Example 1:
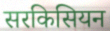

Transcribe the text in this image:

सरकिसियन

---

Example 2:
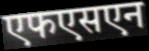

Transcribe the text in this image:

एफएसएन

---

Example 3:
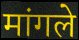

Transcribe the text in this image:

मांगले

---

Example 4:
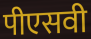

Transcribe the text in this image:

पीएसवी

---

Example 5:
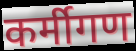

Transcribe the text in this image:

कर्मीगण